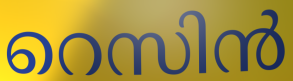
റെസിൻ